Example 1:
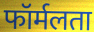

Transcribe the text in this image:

फॉर्मलता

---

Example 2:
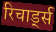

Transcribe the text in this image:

रिचार्ड्स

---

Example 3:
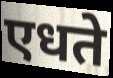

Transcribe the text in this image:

एधते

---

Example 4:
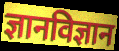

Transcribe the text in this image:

ज्ञानविज्ञान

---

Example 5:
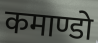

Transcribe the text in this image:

कमाण्डो